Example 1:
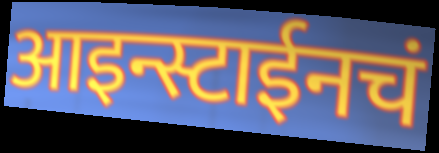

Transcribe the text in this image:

आइन्स्टाईनचं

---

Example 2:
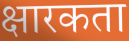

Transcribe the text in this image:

क्षारकता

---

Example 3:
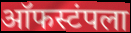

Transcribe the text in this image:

ऑफस्टंपला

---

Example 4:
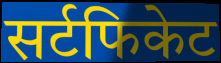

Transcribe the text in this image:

सर्टफिकेट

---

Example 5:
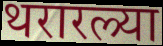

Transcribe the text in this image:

थरारल्या